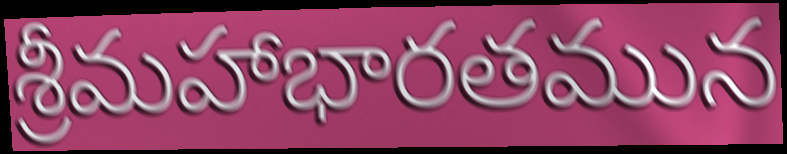
శ్రీమహాభారతమున